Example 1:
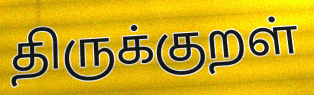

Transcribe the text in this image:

திருக்குறள்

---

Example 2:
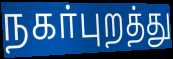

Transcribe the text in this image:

நகர்புறத்து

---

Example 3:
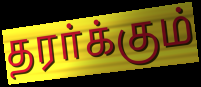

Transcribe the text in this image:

தரர்க்கும்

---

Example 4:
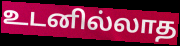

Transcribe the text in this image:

உடனில்லாத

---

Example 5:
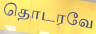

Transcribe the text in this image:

தொடரவே